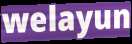
welayun